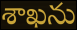
శాఖను